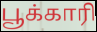
பூக்காரி